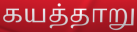
கயத்தாறு